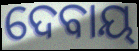
ଦେବାୟ